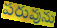
పరువును